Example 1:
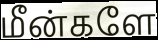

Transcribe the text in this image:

மீன்களே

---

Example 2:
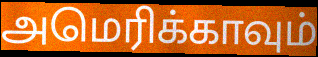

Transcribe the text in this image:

அமெரிக்காவும்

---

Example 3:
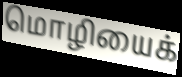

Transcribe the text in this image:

மொழியைக்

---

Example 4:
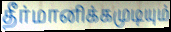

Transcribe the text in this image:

தீர்மானிக்கமுடியும்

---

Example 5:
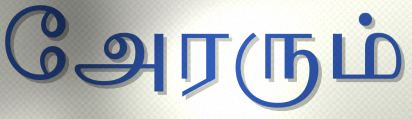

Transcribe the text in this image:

அேரரும்